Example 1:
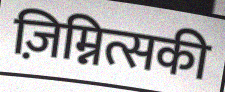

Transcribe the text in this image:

ज़िम्नित्सकी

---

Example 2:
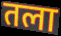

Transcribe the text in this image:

तला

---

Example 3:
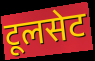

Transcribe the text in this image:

टूलसेट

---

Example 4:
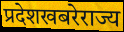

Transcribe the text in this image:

प्रदेशखबरेराज्य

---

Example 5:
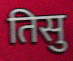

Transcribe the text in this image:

तिसु